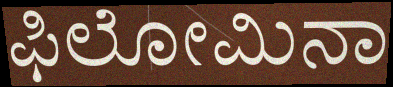
ಫಿಲೋಮಿನಾ